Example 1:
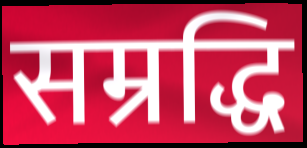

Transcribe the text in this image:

सम्रद्धि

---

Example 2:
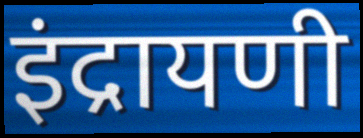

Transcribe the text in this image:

इंद्रायणी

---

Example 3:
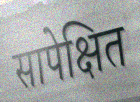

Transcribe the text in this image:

सापेक्षित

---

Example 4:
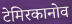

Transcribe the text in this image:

टेमिरकानोव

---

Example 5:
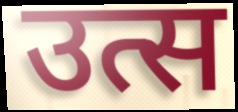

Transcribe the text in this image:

उत्स